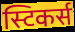
स्टिकर्स